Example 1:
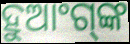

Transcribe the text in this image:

ହୁଆଂଗ୍‍ଙ୍କ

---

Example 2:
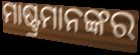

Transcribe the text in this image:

ମାଷ୍ଟ୍ରମାନଙ୍କର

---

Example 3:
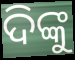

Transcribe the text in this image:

ଦିଙ୍କୁ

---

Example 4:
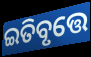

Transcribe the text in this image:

ଇତିବୃତ୍ତେ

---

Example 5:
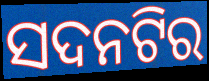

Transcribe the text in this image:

ସଦନଟିର